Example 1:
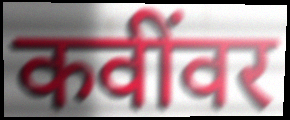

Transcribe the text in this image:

कवींवर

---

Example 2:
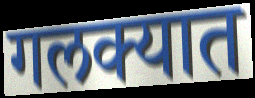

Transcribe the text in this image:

गलक्यात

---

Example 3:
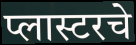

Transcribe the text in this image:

प्लास्टरचे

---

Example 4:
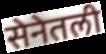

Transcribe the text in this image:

सेनेतली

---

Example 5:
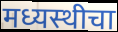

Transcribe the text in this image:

मध्यस्थीचा